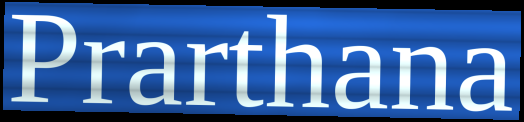
Prarthana